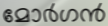
മോർഗൻ